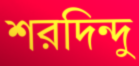
শরদিন্দু